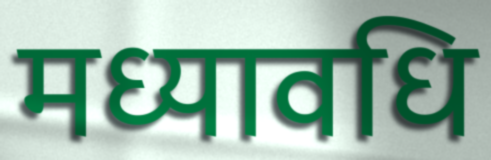
मध्यावधि